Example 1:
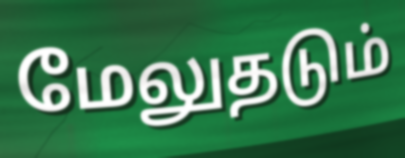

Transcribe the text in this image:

மேலுதடும்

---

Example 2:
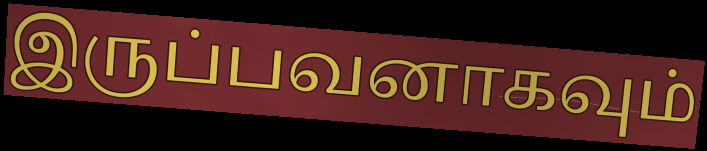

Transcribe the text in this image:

இருப்பவனாகவும்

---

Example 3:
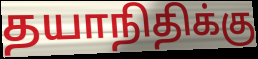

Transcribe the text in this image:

தயாநிதிக்கு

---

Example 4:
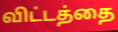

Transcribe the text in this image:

விட்டத்தை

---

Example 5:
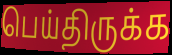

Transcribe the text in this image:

பெய்திருக்க